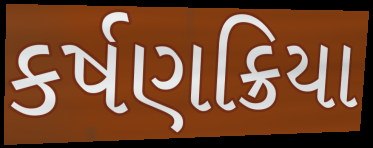
કર્ષણક્રિયા